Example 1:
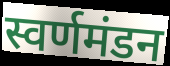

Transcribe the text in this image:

स्वर्णमंडन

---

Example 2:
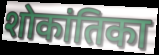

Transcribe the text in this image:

शोकांतिका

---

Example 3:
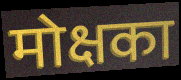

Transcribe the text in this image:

मोक्षका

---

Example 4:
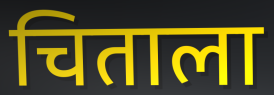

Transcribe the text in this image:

चिताला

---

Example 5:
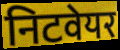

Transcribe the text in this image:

निटवेयर